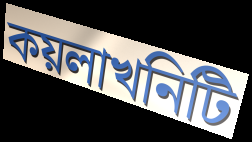
কয়লাখনিটি